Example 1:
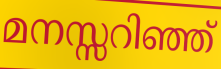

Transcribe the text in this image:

മനസ്സറിഞ്ഞ്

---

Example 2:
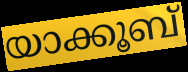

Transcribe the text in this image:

യാക്കൂബ്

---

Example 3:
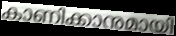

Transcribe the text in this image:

കാണിക്കാനുമായി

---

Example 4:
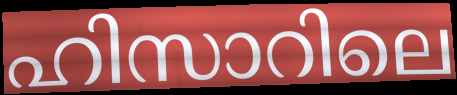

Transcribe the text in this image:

ഹിസാറിലെ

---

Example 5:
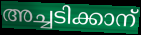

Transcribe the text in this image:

അച്ചടിക്കാന്